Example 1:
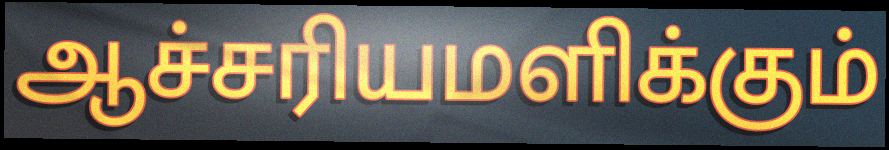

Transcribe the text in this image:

ஆச்சரியமளிக்கும்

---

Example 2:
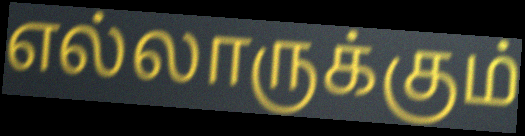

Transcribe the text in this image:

எல்லாருக்கும்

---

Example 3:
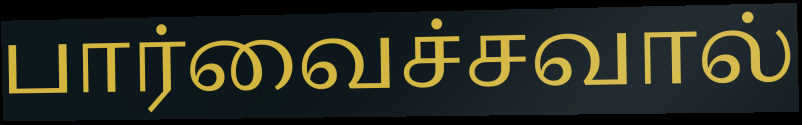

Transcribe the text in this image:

பார்வைச்சவால்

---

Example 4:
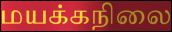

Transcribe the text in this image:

மயக்கநிலை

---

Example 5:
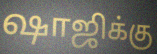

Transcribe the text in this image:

ஷாஜிக்கு